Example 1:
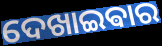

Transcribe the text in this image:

ଦେଖାଇଵାର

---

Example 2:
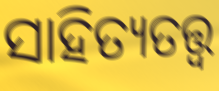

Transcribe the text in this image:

ସାହିତ୍ୟତତ୍ତ୍ୱ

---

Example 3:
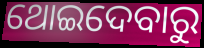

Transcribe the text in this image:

ଥୋଇଦେବାରୁ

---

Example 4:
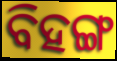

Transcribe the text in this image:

ବିହଙ୍ଗ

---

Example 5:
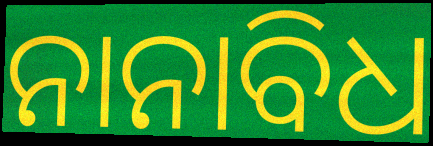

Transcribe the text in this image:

ନାନାବିଧ